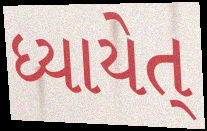
ધ્યાયેત્